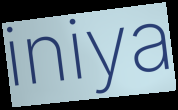
iniya